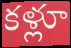
కళ్లూ